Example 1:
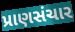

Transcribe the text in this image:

પ્રાણસંચાર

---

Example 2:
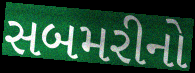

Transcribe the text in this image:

સબમરીનો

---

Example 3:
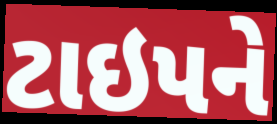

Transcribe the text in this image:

ટાઇપને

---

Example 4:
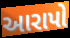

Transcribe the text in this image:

આરાપો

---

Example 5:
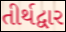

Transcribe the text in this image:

તીર્થદ્વાર